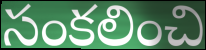
సంకలించి